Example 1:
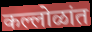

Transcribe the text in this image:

कल्लोळांत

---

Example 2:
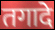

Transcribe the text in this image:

तगादे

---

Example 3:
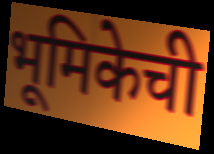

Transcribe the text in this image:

भूमिकेची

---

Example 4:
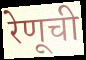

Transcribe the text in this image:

रेणूची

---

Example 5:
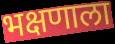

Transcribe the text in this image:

भक्षणाला